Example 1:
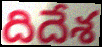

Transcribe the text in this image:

దిదేశ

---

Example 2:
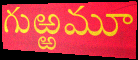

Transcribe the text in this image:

గుఱ్ఱమూ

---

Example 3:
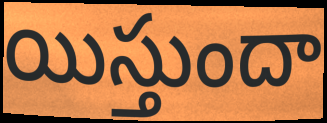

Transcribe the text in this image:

యిస్తుందా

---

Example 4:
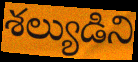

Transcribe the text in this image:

శల్యుడిని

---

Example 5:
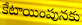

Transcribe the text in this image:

కేటాయింపునకు